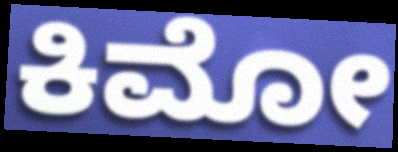
ಕಿಮೋ